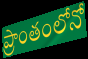
ప్రాంతంలోనో